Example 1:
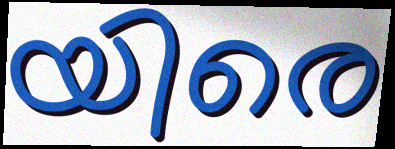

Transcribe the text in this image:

യിരെ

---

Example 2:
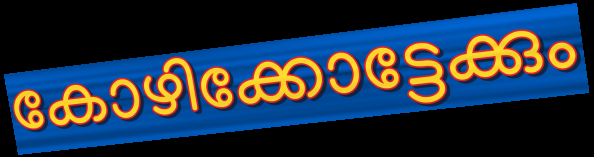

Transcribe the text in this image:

കോഴിക്കോട്ടേക്കും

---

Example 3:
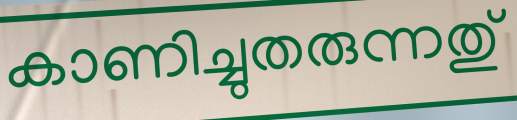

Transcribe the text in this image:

കാണിച്ചുതരുന്നതു്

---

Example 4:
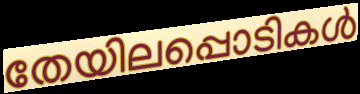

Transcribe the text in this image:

തേയിലപ്പൊടികൾ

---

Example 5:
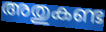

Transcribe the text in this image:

അതുകണ്ട